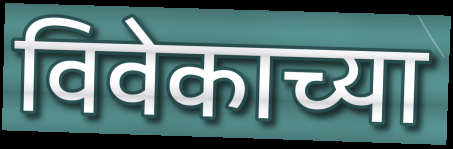
विवेकाच्या